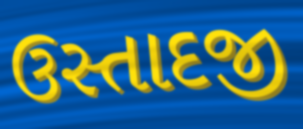
ઉસ્તાદજી